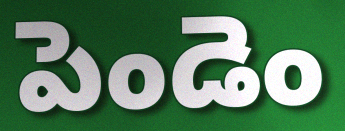
పెండెం